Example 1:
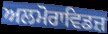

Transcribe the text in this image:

ਅਲਮੋਰਾਵਿਡਜ਼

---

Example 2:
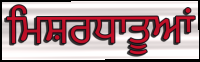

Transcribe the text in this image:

ਮਿਸ਼ਰਧਾਤੂਆਂ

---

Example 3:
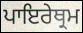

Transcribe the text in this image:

ਪਾਇਰੇਥ੍ਰਮ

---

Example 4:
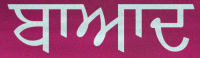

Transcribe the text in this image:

ਬਾਆਦ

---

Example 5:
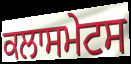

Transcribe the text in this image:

ਕਲਾਸਮੇਟਸ